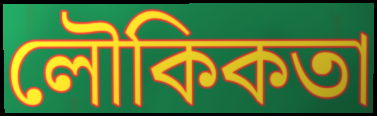
লৌকিকতা